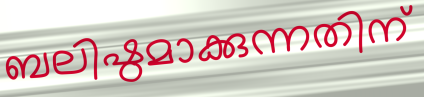
ബലിഷ്ഠമാക്കുന്നതിന്